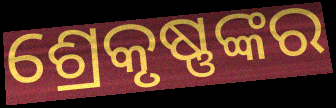
ଶ୍ରେକୃଷ୍ଣଙ୍କର